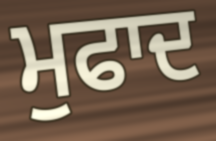
ਮੁਫਾਦ